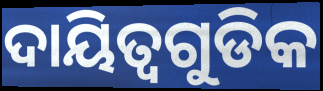
ଦାୟିତ୍ୱଗୁଡିକ